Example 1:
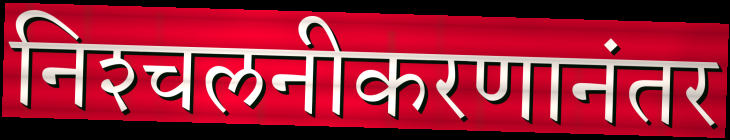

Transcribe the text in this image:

निश्चलनीकरणानंतर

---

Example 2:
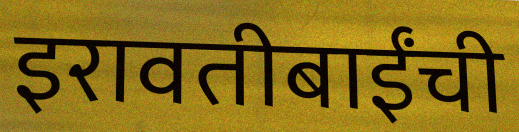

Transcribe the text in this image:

इरावतीबाईंची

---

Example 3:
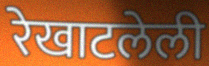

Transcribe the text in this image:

रेखाटलेली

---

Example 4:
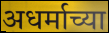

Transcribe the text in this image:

अधर्माच्या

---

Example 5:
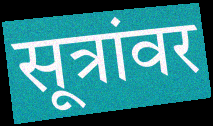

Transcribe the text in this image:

सूत्रांवर